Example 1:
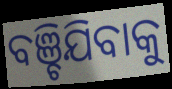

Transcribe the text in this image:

ବଞ୍ଚିଯିବାକୁ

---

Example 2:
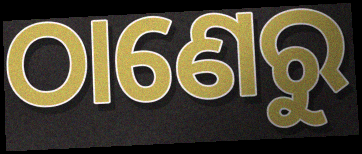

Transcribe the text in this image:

ଠାଣେରୁ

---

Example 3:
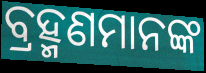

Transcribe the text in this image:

ବ୍ରହ୍ମଣମାନଙ୍କ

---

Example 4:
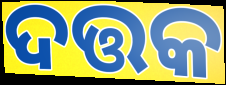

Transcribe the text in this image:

ଦତ୍ତକ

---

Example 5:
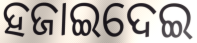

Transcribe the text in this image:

ହଜାଇଦେଇ